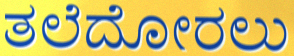
ತಲೆದೋರಲು